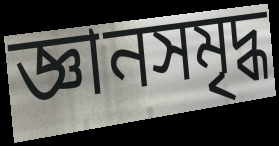
জ্ঞানসমৃদ্ধ